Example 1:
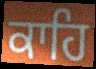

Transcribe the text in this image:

ਕਾਹਿ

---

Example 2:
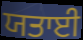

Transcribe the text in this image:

ਯਤਾਈ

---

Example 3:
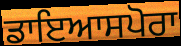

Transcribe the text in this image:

ਡਾਇਆਸਪੋਰਾ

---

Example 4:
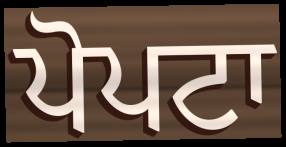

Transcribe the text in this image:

ਪੋਪਟਾ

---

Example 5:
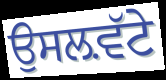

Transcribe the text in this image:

ਉਸਲ਼ਵੱਟੇ